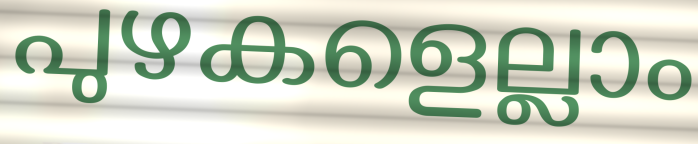
പുഴകളെല്ലാം